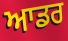
ਆਡਰ